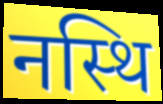
नस्थि